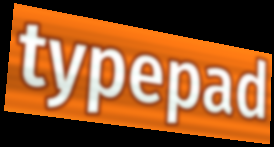
typepad